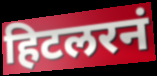
हिटलरनं